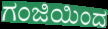
ಗಂಜಿಯಿಂದ